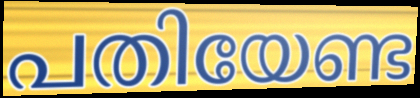
പതിയേണ്ട